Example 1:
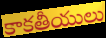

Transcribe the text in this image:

కాకతీయులు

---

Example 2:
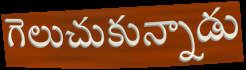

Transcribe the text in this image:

గెలుచుకున్నాడు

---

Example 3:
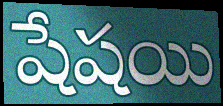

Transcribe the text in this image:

షేషయి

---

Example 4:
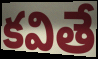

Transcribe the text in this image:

కవితే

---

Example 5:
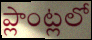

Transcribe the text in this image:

ప్లాంట్లలో